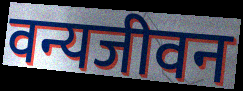
वन्यजीवन